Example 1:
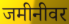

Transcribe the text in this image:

जमीनीवर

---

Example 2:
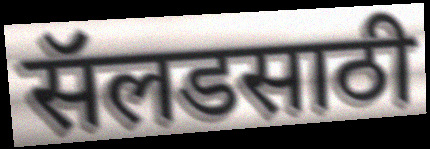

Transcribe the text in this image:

सॅलडसाठी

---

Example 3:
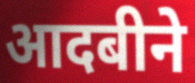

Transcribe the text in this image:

आदबीने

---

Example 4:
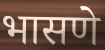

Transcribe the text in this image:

भासणे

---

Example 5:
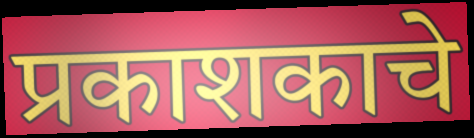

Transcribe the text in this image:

प्रकाशकाचे